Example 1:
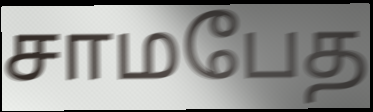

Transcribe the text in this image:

சாமபேத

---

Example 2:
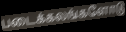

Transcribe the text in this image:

படைக்கலங்களோடு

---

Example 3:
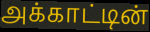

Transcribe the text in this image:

அக்காட்டின்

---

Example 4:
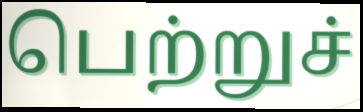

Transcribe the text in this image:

பெற்றுச்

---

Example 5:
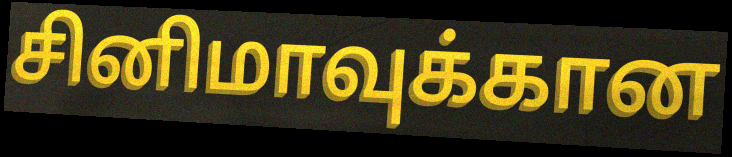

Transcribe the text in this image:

சினிமாவுக்கான